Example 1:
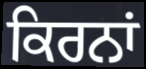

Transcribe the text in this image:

ਕਿਰਨਾਂ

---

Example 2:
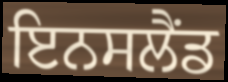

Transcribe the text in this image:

ਇਨਸਲੈਂਡ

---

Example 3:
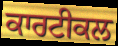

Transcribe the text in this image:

ਕਾਰਟੀਕਲ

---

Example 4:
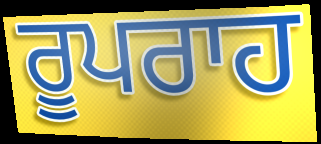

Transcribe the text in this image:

ਰੂਪਰਾਹ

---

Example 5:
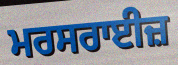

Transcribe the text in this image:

ਮਰਸਰਾਈਜ਼